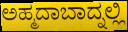
ಅಹ್ಮದಾಬಾದ್ನಲ್ಲಿ